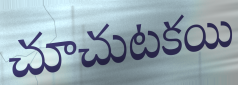
చూచుటకయి